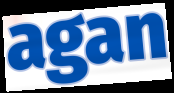
agan